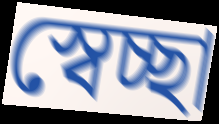
স্বেচ্ছা